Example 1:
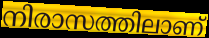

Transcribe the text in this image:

നിരാസത്തിലാണ്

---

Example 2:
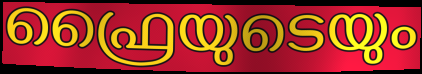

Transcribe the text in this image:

ഫ്രൈയുടെയും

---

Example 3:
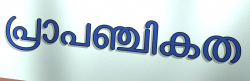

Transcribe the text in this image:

പ്രാപഞ്ചികത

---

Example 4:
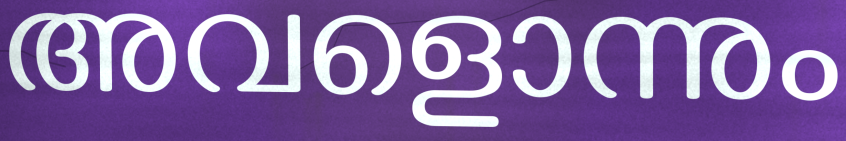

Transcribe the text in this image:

അവളൊന്നും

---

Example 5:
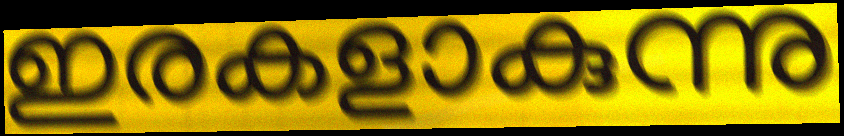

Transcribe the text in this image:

ഇരകളാകുന്നു